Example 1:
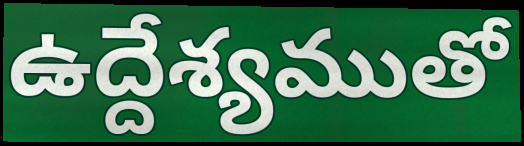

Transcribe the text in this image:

ఉద్దేశ్యముతో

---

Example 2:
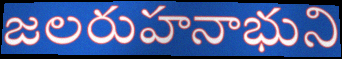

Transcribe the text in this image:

జలరుహనాభుని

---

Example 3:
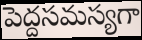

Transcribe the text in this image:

పెద్దసమస్యగా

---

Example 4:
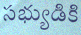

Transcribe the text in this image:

సభ్యుడికి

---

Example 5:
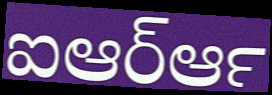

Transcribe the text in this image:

ఐఆర్ఆర్‍